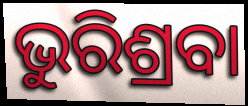
ଭୁରିଶ୍ରବା